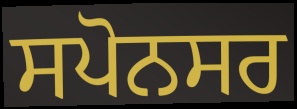
ਸਪੋਨਸਰ